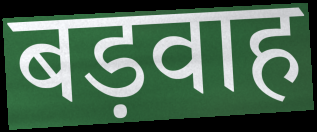
बड़वाह